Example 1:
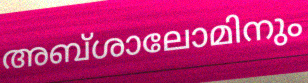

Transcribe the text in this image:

അബ്ശാലോമിനും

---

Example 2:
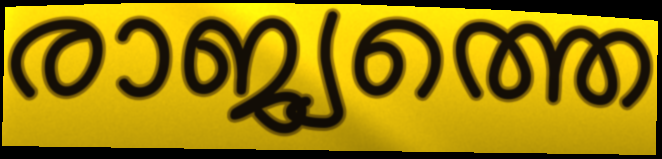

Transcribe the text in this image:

രാജ്യത്തെ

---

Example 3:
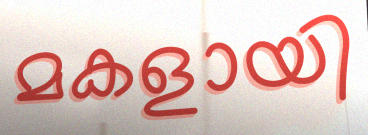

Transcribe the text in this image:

മകളായി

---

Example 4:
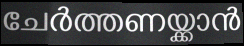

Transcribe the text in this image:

ചേർത്തണയ്ക്കാൻ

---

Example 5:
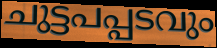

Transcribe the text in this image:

ചുട്ടപപ്പടവും